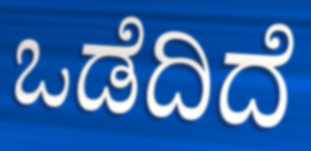
ಒಡೆದಿದೆ